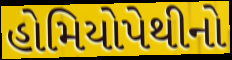
હોમિયોપેથીનો